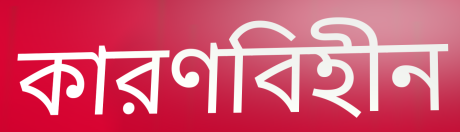
কারণবিহীন